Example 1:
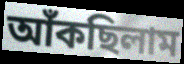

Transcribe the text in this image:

আঁকছিলাম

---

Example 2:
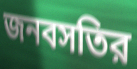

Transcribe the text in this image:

জনবসতির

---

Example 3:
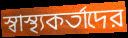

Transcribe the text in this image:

স্বাস্থ্যকর্তাদের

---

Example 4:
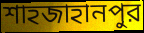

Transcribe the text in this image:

শাহজাহানপুর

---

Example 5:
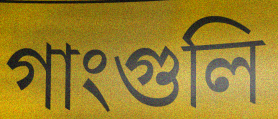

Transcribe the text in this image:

গাংগুলি